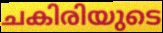
ചകിരിയുടെ